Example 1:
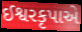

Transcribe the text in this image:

ઈશ્વરકૃપાએ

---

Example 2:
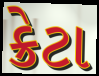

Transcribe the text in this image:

ક્રેટા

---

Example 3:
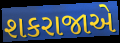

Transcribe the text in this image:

શકરાજાએ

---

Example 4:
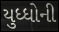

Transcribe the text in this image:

યુધ્ધોની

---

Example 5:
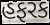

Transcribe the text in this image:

હફરક